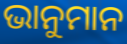
ଭାନୁମାନ